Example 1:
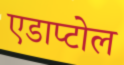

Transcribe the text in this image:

एडाप्टोल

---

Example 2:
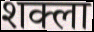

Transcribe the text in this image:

शक्ला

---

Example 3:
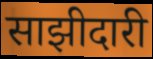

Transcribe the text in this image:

साझीदारी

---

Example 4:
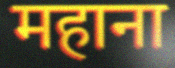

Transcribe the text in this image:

महाना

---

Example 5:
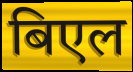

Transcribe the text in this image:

बिएल